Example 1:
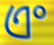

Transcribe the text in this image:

ଏଂ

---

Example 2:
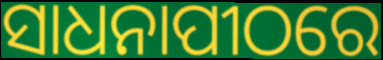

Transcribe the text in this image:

ସାଧନାପୀଠରେ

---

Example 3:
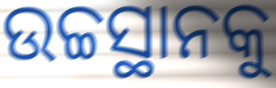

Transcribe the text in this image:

ଉଚ୍ଚସ୍ଥାନକୁ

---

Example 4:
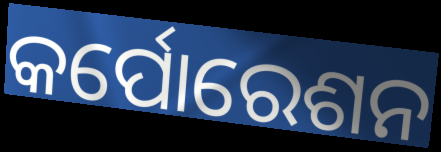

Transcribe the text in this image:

କର୍ପୋରେଶନ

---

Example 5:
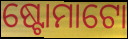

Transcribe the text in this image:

ଷ୍ଟୋମାଟୋ